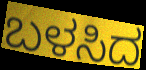
ಬಳಸಿದ